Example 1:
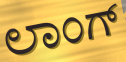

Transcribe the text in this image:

ಲಾಂಗ್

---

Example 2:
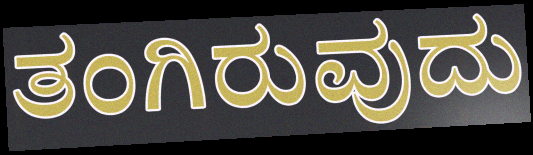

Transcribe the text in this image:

ತಂಗಿರುವುದು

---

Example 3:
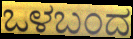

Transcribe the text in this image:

ಒಳಬಂದ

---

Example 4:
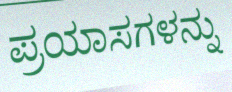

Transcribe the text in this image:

ಪ್ರಯಾಸಗಳನ್ನು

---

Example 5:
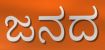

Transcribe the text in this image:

ಜನದ